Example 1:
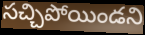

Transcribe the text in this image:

సచ్చిపోయిండని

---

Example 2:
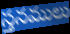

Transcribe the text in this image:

స్తనములు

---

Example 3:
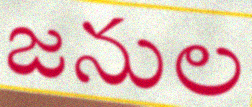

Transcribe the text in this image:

జనుల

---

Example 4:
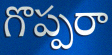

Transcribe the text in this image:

గొప్పరా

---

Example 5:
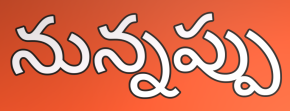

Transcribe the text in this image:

నున్నప్పు